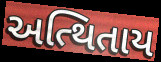
અત્થિતાય